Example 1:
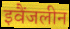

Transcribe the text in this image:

इवैंजलीन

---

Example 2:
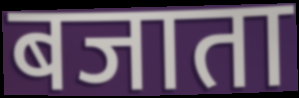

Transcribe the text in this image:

बजाता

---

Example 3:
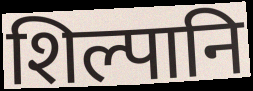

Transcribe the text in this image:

शिल्पानि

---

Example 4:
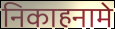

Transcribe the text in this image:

निकाहनामे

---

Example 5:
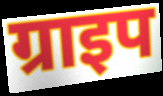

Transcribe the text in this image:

ग्राइप